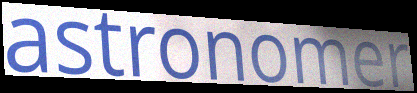
astronomer